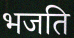
भजति